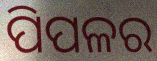
ପିପଳର